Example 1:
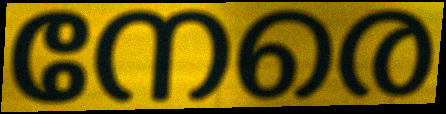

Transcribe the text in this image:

നേരെ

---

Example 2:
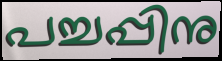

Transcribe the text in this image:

പച്ചപ്പിനു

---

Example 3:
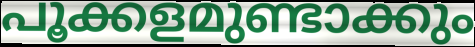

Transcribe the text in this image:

പൂക്കളമുണ്ടാക്കും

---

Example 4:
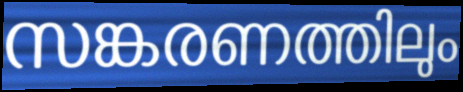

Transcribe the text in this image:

സങ്കരണത്തിലും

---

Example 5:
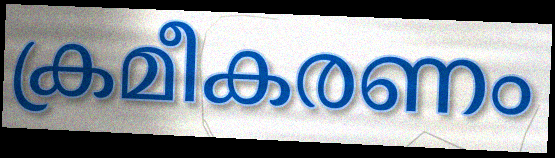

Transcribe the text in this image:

ക്രമീകരണം